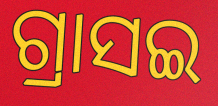
ଗ୍ରାସଇ